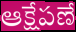
ఆక్షేపణే